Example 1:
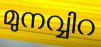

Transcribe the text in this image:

മുനവ്വിറ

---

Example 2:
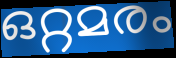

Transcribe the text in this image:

ഒറ്റമരം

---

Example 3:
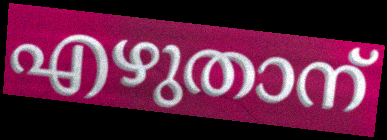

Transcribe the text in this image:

എഴുതാന്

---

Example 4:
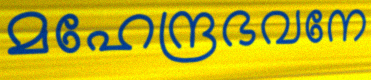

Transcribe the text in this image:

മഹേന്ദ്രഭവനേ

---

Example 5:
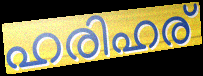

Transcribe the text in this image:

ഹരിഹര്